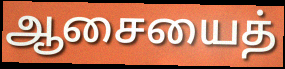
ஆசையைத்